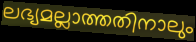
ലഭ്യമല്ലാത്തതിനാലും